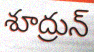
శూద్రున్